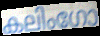
കലിംഗോ